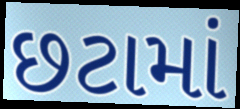
છટામાં